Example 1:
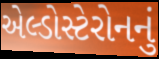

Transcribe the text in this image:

એલ્ડોસ્ટેરોનનું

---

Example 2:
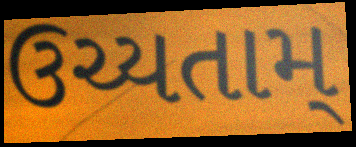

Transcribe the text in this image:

ઉચ્યતામ્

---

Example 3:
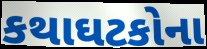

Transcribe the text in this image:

કથાઘટકોના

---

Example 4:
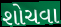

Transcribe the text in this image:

શોચવા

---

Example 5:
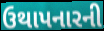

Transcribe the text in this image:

ઉથાપનારની